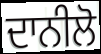
ਦਾਨੀਲੋ